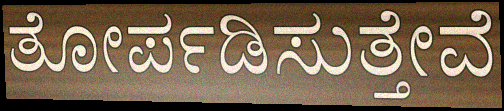
ತೋರ್ಪಡಿಸುತ್ತೇವೆ